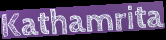
Kathamrita